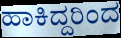
ಹಾಕಿದ್ದರಿಂದ